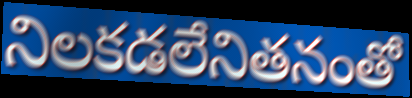
నిలకడలేనితనంతో